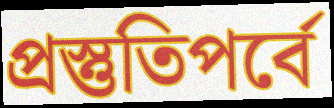
প্রস্তুতিপর্বে